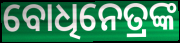
ବୋଧିନେତ୍ରଙ୍କ